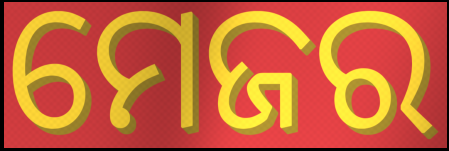
ମେଜର